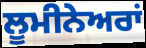
ਲੂਮੀਨੇਅਰਾਂ